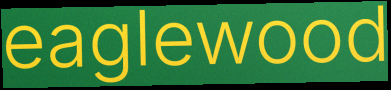
eaglewood